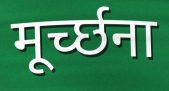
मूर्च्छना